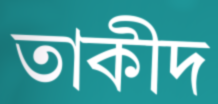
তাকীদ